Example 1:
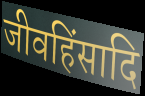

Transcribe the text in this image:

जीवहिंसादि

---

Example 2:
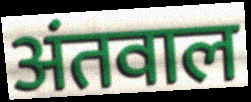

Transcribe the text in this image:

अंतवाल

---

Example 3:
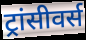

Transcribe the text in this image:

ट्रांसीवर्स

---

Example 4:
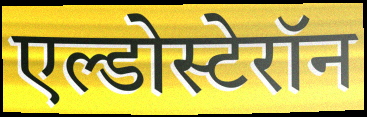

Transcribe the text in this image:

एल्डोस्टेरॉन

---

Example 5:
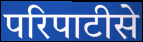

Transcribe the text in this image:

परिपाटीसे